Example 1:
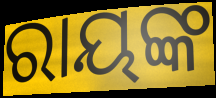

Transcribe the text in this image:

ରାୟଙ୍କ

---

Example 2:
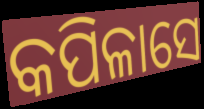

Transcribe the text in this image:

କପିଳାସେ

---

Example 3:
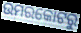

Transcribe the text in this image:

ଉମରକୋଟରୁ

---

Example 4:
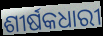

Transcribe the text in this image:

ଶୀର୍ଷକଧାରୀ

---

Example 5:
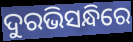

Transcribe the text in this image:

ଦୁରଭିସନ୍ଧିରେ